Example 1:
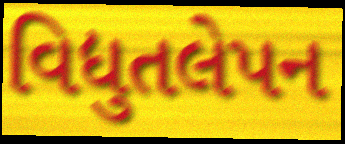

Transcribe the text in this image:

વિદ્યુતલેપન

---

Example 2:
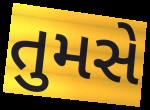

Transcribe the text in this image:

તુમસે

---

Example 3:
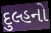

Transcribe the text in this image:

દુલ્હનો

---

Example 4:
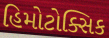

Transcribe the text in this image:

હિમોટોક્સિક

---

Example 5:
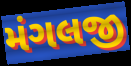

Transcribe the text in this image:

મંગલજી